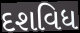
દશવિધ